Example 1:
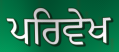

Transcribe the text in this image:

ਪਰਿਵੇਖ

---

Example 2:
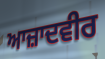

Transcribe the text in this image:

ਆਜ਼ਾਦਵੀਰ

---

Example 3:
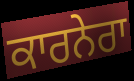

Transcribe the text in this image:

ਕਾਰਨੇਰਾ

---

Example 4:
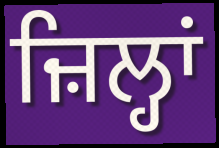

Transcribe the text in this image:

ਜ਼ਿਲ੍ਹਾਂ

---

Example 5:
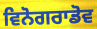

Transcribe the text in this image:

ਵਿਨੋਗਰਾਡੋਵ